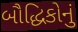
બૌદ્ધિકોનું